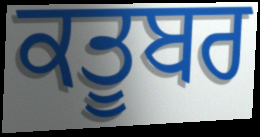
ਕਤੂਬਰ